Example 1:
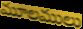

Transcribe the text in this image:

మూలములు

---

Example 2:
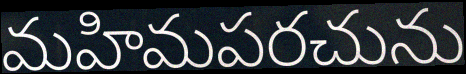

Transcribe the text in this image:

మహిమపరచును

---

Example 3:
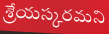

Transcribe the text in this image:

శ్రేయస్కరమని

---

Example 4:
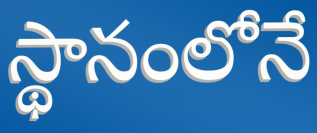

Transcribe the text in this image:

స్థానంలోనే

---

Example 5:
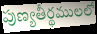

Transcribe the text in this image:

పుణ్యతీర్థములలో